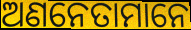
ଅଣନେତାମାନେ